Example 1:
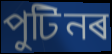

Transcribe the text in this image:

পুটিনৰ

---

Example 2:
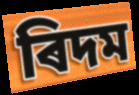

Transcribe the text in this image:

ৰিদম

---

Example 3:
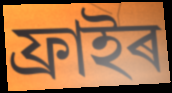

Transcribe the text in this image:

ফ্ৰাইৰ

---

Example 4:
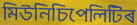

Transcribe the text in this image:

মিউনিচিপেলিটিৰ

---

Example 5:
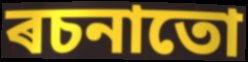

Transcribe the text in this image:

ৰচনাতো